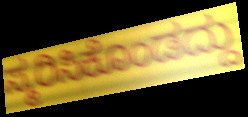
ಸ್ಮರಿಸಿಕೊಂಡದ್ದು